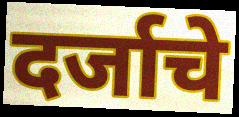
दर्जाचे